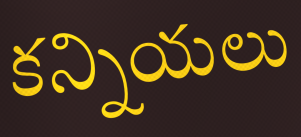
కన్నియలు